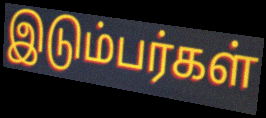
இடும்பர்கள்